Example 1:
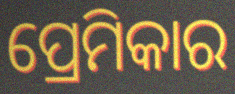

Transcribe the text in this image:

ପ୍ରେମିକାର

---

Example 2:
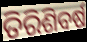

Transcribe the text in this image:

ତିରିଶିବର୍ଷ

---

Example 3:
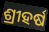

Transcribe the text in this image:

ଶ୍ରୀହର୍ଷ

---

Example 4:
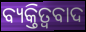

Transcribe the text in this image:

ବ୍ଯକ୍ତିତ୍ଵବାଦ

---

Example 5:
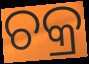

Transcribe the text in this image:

ଚକ୍ର